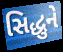
સિદ્ધુને